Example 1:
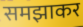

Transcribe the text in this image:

समझाकर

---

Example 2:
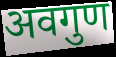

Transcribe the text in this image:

अवगुण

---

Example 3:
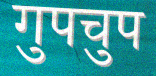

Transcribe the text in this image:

गुपचुप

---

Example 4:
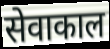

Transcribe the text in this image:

सेवाकाल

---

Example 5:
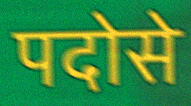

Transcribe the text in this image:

पदोसे